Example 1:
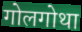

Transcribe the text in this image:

गोलगोथा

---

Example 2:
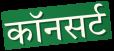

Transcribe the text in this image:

कॉनसर्ट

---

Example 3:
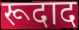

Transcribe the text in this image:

रूदाद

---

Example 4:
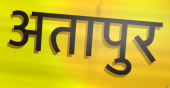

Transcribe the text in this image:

अतापुर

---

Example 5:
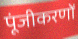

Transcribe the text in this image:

पूंजीकरणों